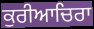
ਕੁਰੀਆਚਿਰਾ